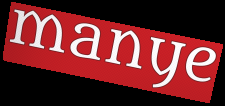
manye